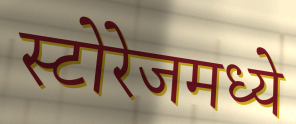
स्टोरेजमध्ये